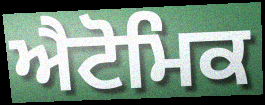
ਐਟੋਮਿਕ